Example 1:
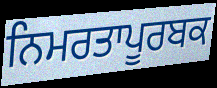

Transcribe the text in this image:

ਨਿਮਰਤਾਪੂਰਬਕ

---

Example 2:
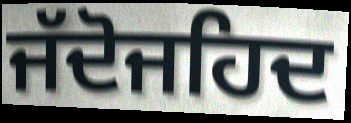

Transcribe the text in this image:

ਜੱਦੋਜਹਿਦ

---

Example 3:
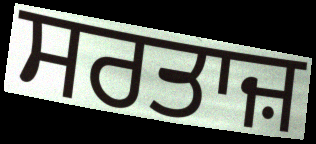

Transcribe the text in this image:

ਸਰਤਾਜ਼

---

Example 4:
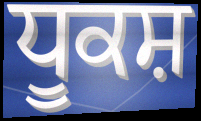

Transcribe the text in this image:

ਧੂਕਸ਼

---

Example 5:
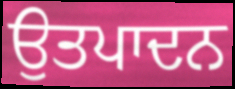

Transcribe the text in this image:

ਉਤਪਾਦਨ